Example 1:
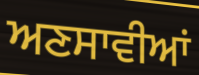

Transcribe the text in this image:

ਅਣਸਾਵੀਆਂ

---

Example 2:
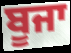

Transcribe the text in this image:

ਬੂਜਾ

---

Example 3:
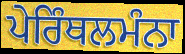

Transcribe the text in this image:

ਪੇਰਿੰਥਲਮੰਨਾ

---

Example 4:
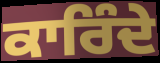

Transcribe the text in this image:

ਕਾਰਿੰਦੇ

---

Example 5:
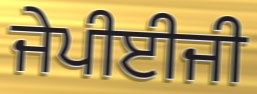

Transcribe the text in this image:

ਜੇਪੀਈਜੀ